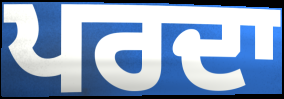
ਪਰਦਾ